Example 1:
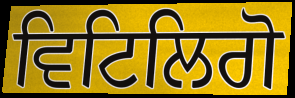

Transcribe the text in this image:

ਵਿਟਿਲਿਗੋ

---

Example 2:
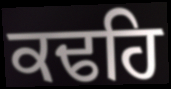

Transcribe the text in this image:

ਕਢਹਿ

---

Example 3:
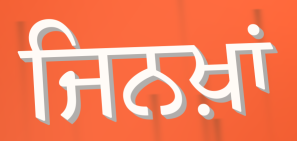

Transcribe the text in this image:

ਜਿਨਖ਼ਾਂ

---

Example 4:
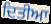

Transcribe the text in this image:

ਦਿਤੀਆ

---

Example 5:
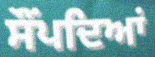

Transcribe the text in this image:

ਸੌਂਪਦਿਆਂ